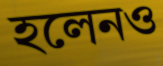
হলেনও